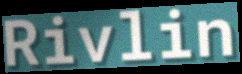
Rivlin